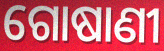
ଗୋଷାଣୀ